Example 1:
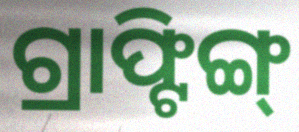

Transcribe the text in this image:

ଗ୍ରାଫ୍ଟିଙ୍ଗ୍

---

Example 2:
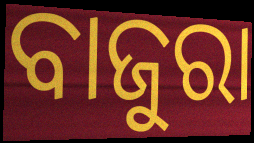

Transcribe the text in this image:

ବାଜୁରା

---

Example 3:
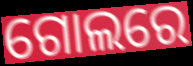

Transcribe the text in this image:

ଗୋଲରେ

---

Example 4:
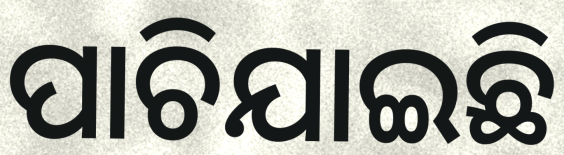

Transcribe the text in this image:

ପାଚିଯାଇଛି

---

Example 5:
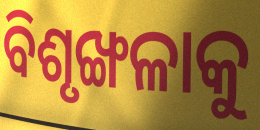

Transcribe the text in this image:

ବିଶୃଙ୍ଖଳାକୁ